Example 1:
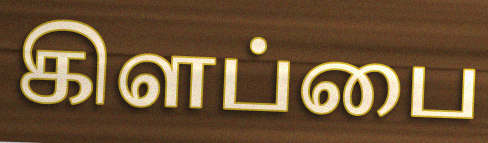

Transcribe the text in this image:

கிளப்பை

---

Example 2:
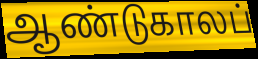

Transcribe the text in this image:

ஆண்டுகாலப்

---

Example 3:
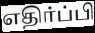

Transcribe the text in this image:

எதிர்ப்பி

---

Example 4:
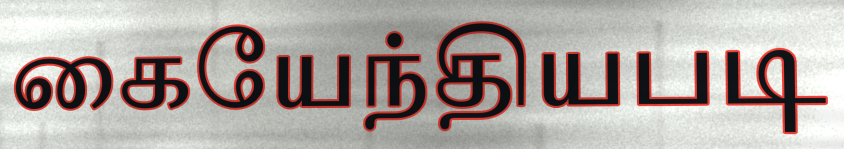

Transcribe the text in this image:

கையேந்தியபடி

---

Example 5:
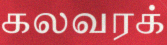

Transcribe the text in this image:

கலவரக்